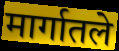
मार्गातले